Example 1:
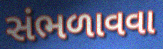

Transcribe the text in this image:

સંભળાવવા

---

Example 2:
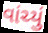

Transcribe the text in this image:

વાંચ્યું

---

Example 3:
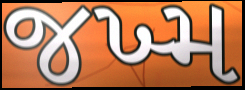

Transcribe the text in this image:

જખ્મ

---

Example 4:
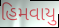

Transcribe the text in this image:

હિમવાયુ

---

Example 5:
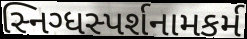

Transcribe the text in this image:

સ્નિગ્ધસ્પર્શનામકર્મ